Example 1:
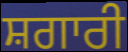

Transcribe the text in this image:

ਸ਼ਗਾਰੀ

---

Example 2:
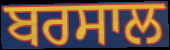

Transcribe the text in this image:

ਬਰਸਾਲ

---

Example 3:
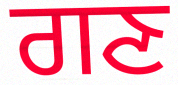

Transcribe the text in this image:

ਗਣ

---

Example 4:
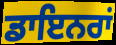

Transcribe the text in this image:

ਡਾਇਨਰਾਂ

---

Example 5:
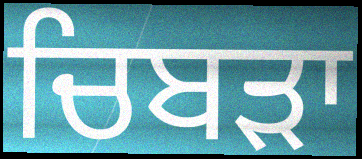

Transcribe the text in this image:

ਚਿਬੜਾ